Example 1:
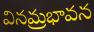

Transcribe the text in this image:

వినమ్రభావన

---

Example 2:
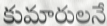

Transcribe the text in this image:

కుమారులనే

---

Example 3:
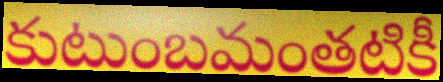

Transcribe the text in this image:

కుటుంబమంతటికీ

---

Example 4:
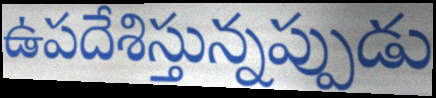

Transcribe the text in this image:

ఉపదేశిస్తున్నప్పుడు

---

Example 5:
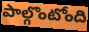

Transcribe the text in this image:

పాల్గొంటోంది